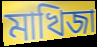
মাখিজা